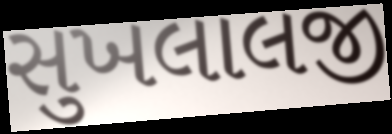
સુખલાલજી